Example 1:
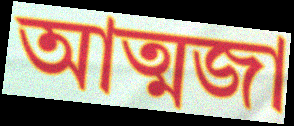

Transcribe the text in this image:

আত্মজা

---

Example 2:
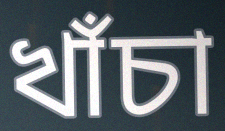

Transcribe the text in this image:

খাঁচা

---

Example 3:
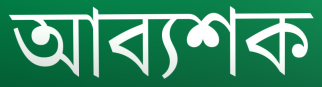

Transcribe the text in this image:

আব্যশক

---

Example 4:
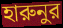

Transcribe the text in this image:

হারুনুর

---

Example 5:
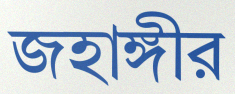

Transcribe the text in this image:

জহাঙ্গীর